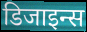
डिजाइन्स